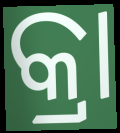
କ୍ରା